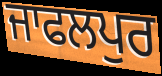
ਜਾਫਲਪੁਰ